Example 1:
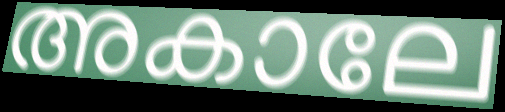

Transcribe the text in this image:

അകാലേ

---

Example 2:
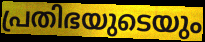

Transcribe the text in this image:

പ്രതിഭയുടെയും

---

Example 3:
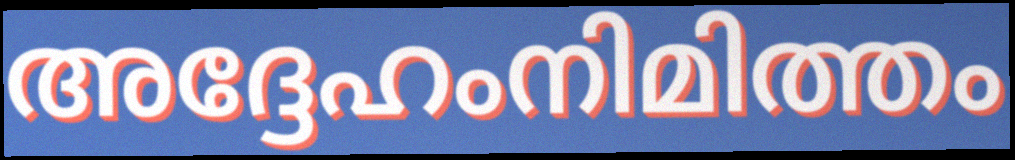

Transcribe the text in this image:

അദ്ദേഹംനിമിത്തം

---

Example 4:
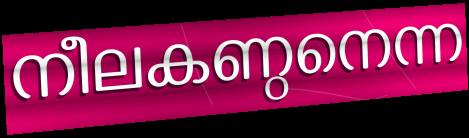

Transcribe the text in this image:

നീലകണ്ഠനെന്ന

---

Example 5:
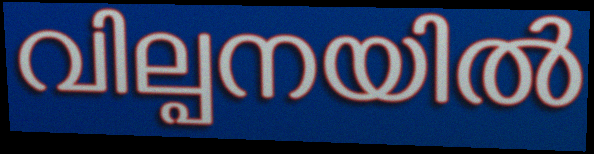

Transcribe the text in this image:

വില്പനയിൽ